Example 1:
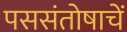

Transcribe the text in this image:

पससंतोषाचें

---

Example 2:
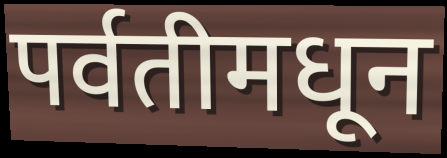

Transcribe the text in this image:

पर्वतीमधून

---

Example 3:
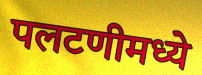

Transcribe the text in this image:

पलटणीमध्ये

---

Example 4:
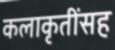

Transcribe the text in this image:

कलाकृतींसह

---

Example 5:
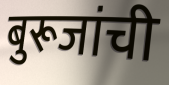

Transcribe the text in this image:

बुरूजांची